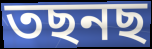
তছনছ